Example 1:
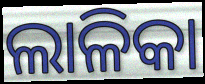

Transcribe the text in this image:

ଲାଳିକା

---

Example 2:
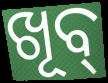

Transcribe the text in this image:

ଖୂବ୍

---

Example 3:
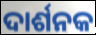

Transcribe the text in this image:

ଦାର୍ଶନକ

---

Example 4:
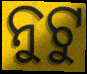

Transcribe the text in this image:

ନୁଟୁ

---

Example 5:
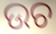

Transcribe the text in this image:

ଉଚ